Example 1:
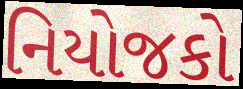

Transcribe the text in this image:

નિયોજકો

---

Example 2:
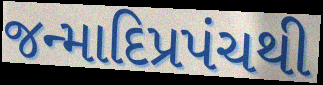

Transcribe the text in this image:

જન્માદિપ્રપંચથી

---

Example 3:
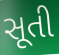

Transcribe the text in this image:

સૂતી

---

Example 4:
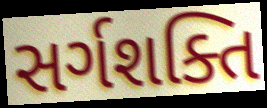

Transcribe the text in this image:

સર્ગશક્તિ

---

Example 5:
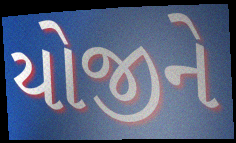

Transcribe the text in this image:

યોજીને